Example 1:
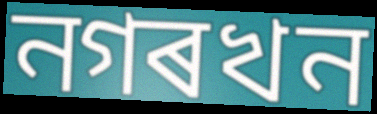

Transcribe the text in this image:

নগৰখন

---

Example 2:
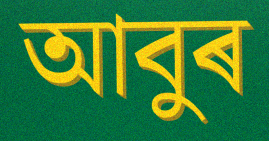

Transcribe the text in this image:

আবুৰ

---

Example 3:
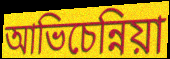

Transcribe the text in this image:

আভিচেন্নিয়া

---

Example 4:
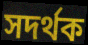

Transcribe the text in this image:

সদৰ্থক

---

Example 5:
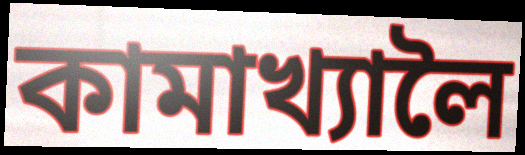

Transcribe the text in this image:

কামাখ্যালৈ